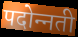
पदोन्‍नती